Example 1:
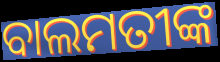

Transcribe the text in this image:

ବାଲମତୀଙ୍କ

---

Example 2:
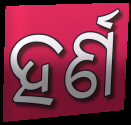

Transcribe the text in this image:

ହର୍ଣ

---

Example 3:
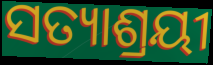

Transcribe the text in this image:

ସତ୍ୟାଶ୍ରୟୀ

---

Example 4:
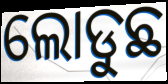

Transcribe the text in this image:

ଲୋଡୁଛ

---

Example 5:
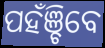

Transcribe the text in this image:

ପହଁଞ୍ଚିବେ